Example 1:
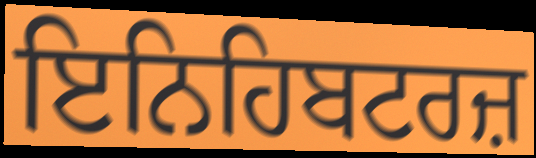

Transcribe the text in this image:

ਇਨਿਹਿਬਟਰਜ਼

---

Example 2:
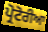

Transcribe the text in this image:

ਪ੍ਰੋਟੋਰੀਆ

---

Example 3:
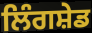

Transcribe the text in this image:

ਲਿੰਗਸ਼ੇਡ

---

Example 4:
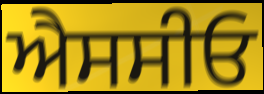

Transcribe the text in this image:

ਐਸਸੀਓ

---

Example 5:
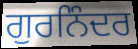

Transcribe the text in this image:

ਗੁਰਨਿੰਦਰ